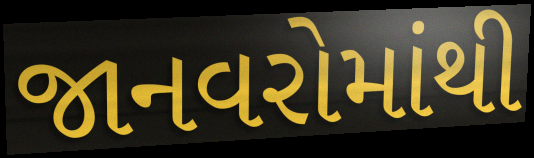
જાનવરોમાંથી